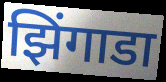
झिंगाडा